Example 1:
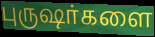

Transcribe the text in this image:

புருஷர்களை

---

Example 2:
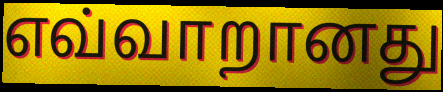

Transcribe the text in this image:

எவ்வாறானது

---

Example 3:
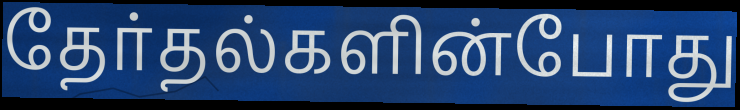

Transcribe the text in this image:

தேர்தல்களின்போது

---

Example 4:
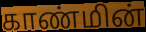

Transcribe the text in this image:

காண்மின்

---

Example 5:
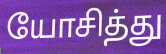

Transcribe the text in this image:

யோசித்து